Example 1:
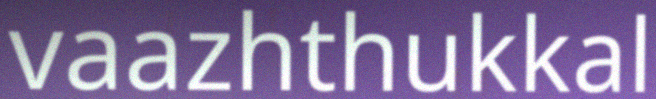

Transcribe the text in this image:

vaazhthukkal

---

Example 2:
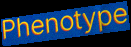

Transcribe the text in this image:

Phenotype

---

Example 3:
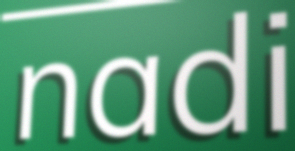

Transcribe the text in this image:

nadi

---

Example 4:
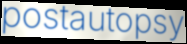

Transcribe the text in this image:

postautopsy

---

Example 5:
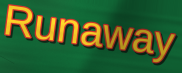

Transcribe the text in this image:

Runaway